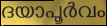
ദയാപൂർവം